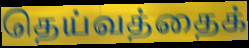
தெய்வத்தைக்